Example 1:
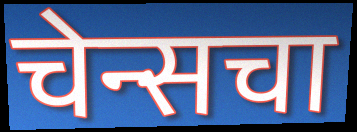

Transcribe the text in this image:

चेन्सचा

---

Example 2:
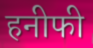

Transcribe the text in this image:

हनीफी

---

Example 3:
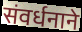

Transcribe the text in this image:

संवर्धनाने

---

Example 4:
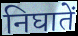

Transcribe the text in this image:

निघातें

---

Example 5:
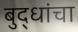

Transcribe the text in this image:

बुद्धांचा